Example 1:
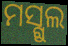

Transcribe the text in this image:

ମସ୍ଗୁଲ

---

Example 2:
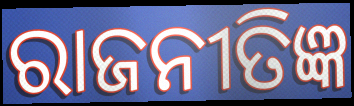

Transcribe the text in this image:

ରାଜନୀତିଜ୍ଞ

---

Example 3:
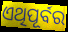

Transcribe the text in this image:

ଏଥିପୂର୍ବର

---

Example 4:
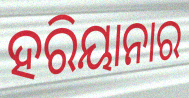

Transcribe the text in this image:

ହରିୟାନାର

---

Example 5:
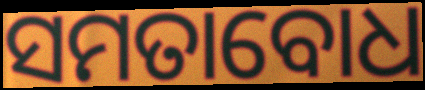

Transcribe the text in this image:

ସମତାବୋଧ